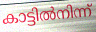
കാട്ടിൽനിന്ന്